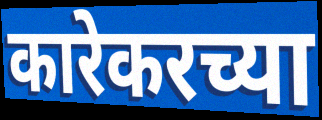
कारेकरच्या